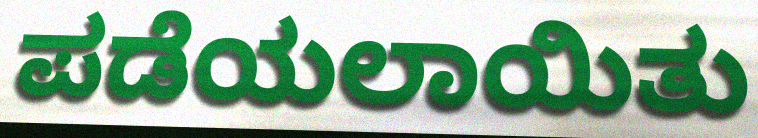
ಪಡೆಯಲಾಯಿತು